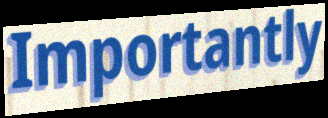
Importantly